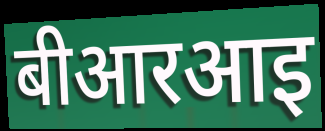
बीआरआइ